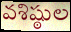
వశిష్ఠుల